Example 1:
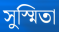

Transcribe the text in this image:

সুস্মিতা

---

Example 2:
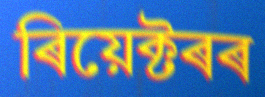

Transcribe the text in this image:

ৰিয়েক্টৰৰ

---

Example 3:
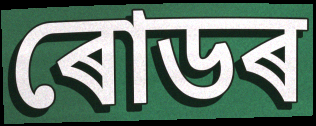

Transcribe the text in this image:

ৰোডৰ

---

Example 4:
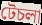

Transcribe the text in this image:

টেচলা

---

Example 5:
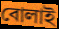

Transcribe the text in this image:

বোলাই